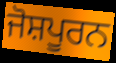
ਜੋਸ਼ਪੂਰਨ